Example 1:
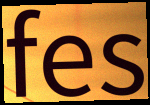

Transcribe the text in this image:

fes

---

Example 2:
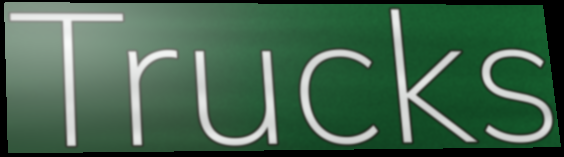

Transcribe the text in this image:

Trucks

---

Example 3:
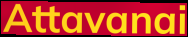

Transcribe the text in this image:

Attavanai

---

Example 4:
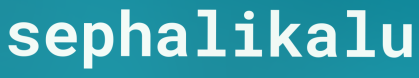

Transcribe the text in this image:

sephalikalu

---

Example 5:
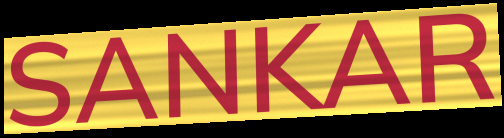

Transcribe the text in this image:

SANKAR